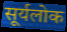
सूर्यलोक